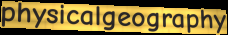
physicalgeography